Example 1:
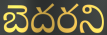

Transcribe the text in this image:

బెదరని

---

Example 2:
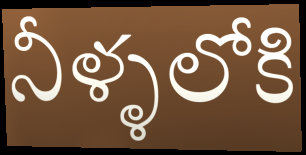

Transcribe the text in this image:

నీళ్ళలోకి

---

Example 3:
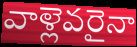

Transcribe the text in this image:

వాళ్లెవరైనా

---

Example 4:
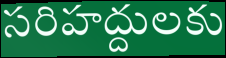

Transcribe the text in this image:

సరిహద్దులకు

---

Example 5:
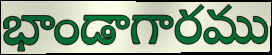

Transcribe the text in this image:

భాండాగారము